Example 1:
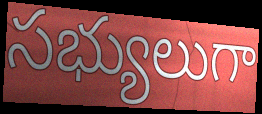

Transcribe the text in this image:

సభ్యులుగా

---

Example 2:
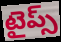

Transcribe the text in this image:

టైప్స్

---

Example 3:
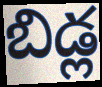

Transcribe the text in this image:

బిడ్ల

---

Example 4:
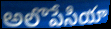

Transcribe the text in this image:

అలొపేసియా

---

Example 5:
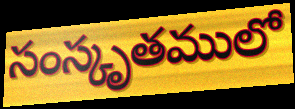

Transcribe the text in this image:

సంస్కృతములో